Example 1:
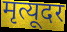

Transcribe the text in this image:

मृत्यूदर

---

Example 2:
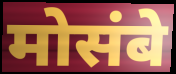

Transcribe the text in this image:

मोसंबे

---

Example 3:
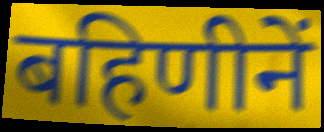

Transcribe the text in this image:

बहिणीनें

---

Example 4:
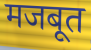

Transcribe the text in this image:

मजबूत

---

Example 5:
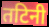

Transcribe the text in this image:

तटिनी